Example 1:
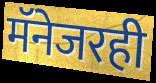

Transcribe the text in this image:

मॅनेजरही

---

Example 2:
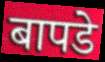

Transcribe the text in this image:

बापडे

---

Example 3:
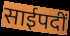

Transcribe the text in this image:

साईपदीं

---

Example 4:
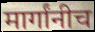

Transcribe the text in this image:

मार्गांनीच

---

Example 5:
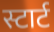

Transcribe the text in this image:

स्टार्ट